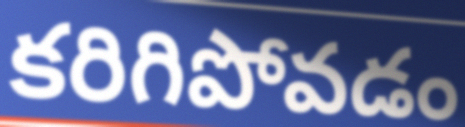
కరిగిపోవడం